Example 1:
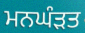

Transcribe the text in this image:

ਮਨਘੰੜਤ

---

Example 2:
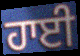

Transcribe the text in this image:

ਹਾਈ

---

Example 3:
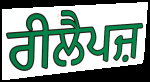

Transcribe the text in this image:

ਰੀਲੈਪਜ਼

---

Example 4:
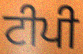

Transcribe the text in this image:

ਟੀਪੀ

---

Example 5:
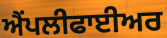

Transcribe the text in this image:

ਐੰਪਲੀਫਾਈਅਰ